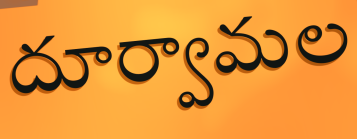
దూర్వామల